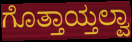
ಗೊತ್ತಾಯ್ತಲ್ವಾ